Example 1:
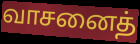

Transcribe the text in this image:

வாசனைத்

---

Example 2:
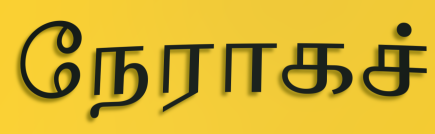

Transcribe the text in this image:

நேராகச்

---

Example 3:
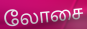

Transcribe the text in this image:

லோசை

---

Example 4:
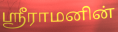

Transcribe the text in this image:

ஸ்ரீராமனின்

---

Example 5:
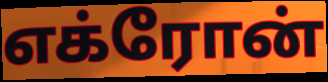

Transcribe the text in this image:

எக்ரோன்